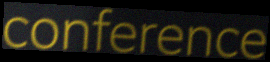
conference